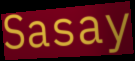
Sasay